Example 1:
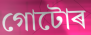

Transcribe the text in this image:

গোটোৰ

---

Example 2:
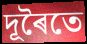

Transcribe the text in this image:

দূৰৈতে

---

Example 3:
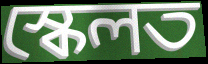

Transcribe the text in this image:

স্কেলত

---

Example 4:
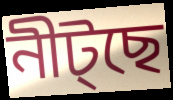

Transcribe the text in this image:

নীট্‌ছে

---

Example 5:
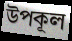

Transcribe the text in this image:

উপকূল